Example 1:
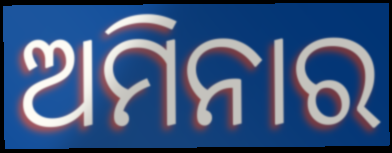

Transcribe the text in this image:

ଅମିନାର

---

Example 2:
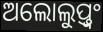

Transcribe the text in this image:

ଅଲୋଲୁପ୍ତ୍ୱଂ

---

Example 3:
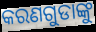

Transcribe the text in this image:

କରଣଗୁଡାଙ୍କୁ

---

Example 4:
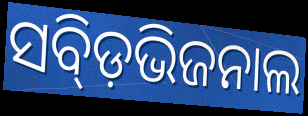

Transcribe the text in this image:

ସବ୍ଡ଼ିଭିଜନାଲ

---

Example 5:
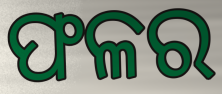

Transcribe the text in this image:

ଫଳର